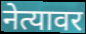
नेत्यावर